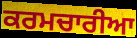
ਕਰਮਚਾਰੀਆ